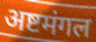
अष्टमंगल